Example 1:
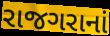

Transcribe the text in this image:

રાજગરાનાં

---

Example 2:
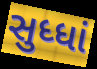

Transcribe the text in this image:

સુધ્ધાં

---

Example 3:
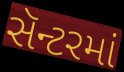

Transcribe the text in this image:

સૅન્ટરમાં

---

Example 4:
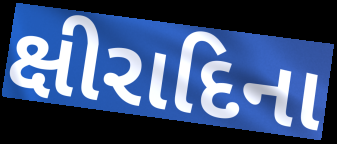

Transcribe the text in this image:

ક્ષીરાદિના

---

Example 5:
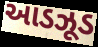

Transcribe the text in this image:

આડઝૂડ